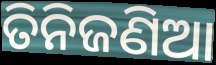
ତିନିଜଣିଆ